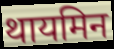
थायमिन